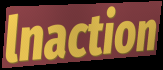
lnaction